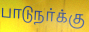
பாடுநர்க்கு